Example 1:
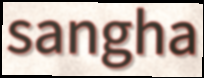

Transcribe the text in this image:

sangha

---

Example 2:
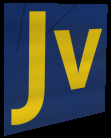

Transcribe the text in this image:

Jv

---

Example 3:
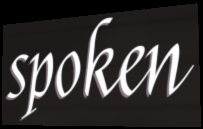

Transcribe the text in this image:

spoken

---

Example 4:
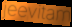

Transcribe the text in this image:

jeevitam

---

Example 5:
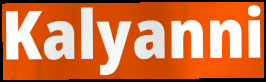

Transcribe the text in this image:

Kalyanni